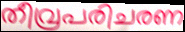
തീവ്രപരിചരണ